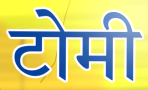
टोमी